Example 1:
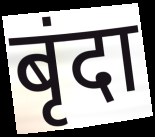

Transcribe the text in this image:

बृंदा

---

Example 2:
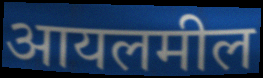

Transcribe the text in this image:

आयलमील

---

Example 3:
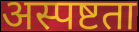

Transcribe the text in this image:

अस्पष्टता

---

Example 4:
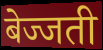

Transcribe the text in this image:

बेज्जती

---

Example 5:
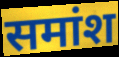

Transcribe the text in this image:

समांश